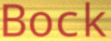
Bock